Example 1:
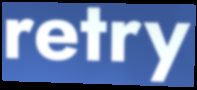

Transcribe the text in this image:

retry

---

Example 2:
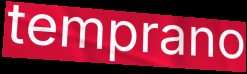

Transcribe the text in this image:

temprano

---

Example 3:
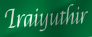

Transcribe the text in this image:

Iraiyuthir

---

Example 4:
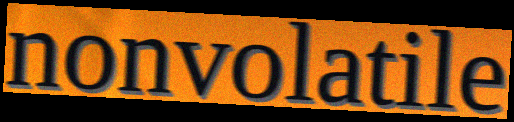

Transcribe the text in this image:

nonvolatile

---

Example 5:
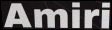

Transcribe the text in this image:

Amiri